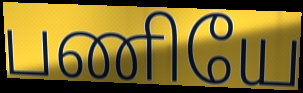
பணியே